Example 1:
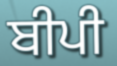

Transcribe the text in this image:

ਬੀਪੀ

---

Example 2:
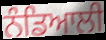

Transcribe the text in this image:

ਨੰਡਿਆਲੀ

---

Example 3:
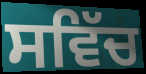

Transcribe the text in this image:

ਸਵਿੱਚ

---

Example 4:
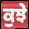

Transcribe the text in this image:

ਕੁਝੇ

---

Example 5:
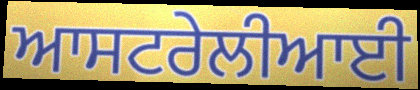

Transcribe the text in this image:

ਆਸਟਰੇਲੀਆਈ